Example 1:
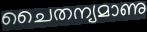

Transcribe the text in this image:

ചൈതന്യമാണു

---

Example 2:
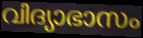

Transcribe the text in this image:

വിദ്യാഭാസം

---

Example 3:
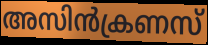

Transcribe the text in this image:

അസിൻക്രണസ്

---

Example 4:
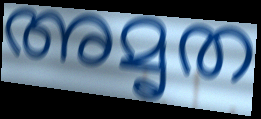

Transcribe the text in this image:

അമൃത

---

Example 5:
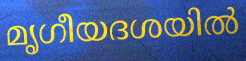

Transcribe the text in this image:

മൃഗീയദശയിൽ